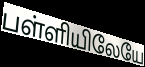
பள்ளியிலேயே